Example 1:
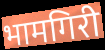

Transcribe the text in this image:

भामगिरी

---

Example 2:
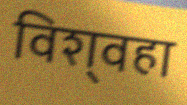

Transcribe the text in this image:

विश्वहा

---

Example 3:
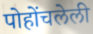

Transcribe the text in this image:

पोहोंचलेली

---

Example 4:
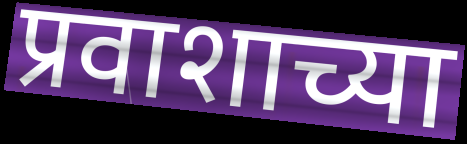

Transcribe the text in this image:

प्रवाशाच्या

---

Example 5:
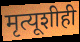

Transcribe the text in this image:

मृत्यूशीही